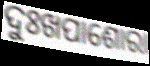
ଦୁଃଖପାଶୋରା